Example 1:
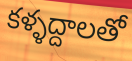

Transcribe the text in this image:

కళ్ళద్దాలతో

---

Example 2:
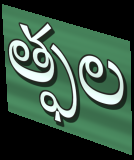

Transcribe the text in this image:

త్ఫల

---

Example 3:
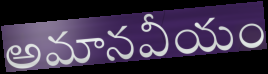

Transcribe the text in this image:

అమానవీయం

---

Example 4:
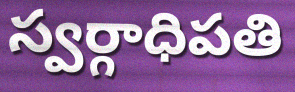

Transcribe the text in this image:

స్వర్గాధిపతి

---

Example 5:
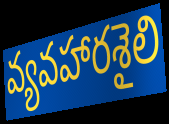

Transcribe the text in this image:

వ్యవహారశైలి